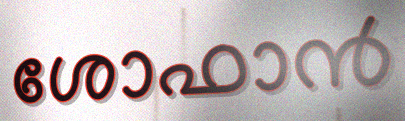
ശോഫാൻ